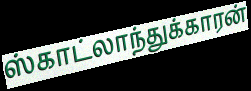
ஸ்காட்லாந்துக்காரன்